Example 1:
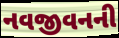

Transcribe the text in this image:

નવજીવનની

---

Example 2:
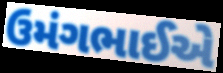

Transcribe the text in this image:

ઉમંગભાઈએ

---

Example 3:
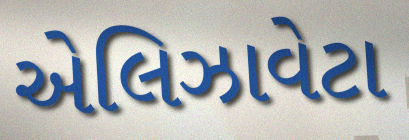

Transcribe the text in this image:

એલિઝાવેટા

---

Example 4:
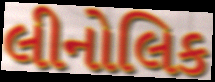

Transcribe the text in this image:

લીનોલિક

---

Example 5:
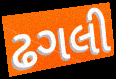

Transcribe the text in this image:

ઢગલી